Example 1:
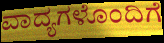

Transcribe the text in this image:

ವಾದ್ಯಗಳೊಂದಿಗೆ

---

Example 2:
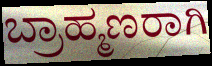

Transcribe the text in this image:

ಬ್ರಾಹ್ಮಣರಾಗಿ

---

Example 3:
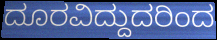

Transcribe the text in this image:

ದೂರವಿದ್ದುದರಿಂದ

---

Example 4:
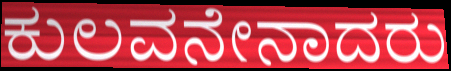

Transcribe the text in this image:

ಕುಲವನೇನಾದರು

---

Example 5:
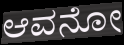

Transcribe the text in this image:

ಆವನೋ